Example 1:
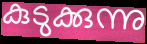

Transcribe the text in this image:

കുടുക്കുന്നു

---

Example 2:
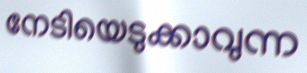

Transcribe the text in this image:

നേടിയെടുക്കാവുന്ന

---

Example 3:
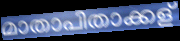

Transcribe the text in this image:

മാതാപിതാക്കള്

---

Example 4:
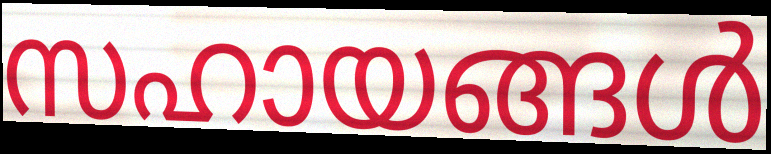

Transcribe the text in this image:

സഹായങ്ങൾ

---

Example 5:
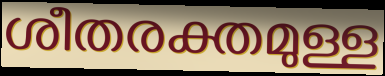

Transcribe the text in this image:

ശീതരക്തമുള്ള